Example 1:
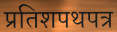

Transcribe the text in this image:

प्रतिशपथपत्र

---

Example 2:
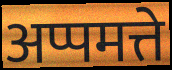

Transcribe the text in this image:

अप्पमत्ते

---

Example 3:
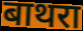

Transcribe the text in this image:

बाथरा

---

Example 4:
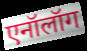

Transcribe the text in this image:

एनॉलॉग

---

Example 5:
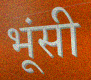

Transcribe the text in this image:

भूंसी